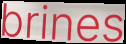
brines